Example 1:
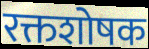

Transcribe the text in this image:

रक्तशोषक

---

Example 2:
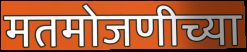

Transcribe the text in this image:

मतमोजणीच्या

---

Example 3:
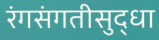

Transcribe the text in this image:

रंगसंगतीसुद्धा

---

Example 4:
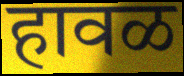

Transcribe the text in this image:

हावळ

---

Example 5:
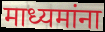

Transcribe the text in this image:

माध्यमांना